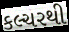
કલ્ચરથી